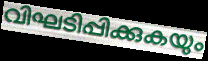
വിഘടിപ്പിക്കുകയും